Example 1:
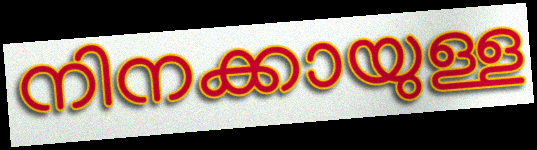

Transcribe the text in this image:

നിനക്കായുള്ള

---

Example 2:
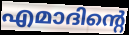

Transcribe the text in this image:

എമാദിന്റെ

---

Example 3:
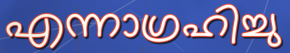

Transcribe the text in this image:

എന്നാഗ്രഹിച്ചു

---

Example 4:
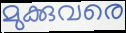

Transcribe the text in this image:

മുക്കുവരെ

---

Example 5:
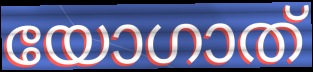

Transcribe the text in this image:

യോഗാത്